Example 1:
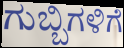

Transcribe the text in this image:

ಗುಬ್ಬಿಗಳಿಗೆ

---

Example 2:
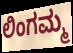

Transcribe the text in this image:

ಲಿಂಗಮ್ಮ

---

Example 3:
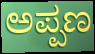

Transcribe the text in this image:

ಅಪ್ಪಣ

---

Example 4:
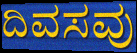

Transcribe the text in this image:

ದಿವಸವು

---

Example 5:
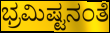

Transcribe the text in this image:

ಭ್ರಮಿಷ್ಟನಂತೆ